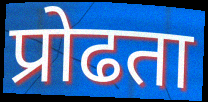
प्रोढता